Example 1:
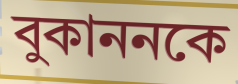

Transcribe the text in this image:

বুকাননকে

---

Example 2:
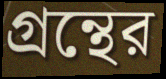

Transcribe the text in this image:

গ্রন্থের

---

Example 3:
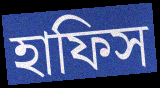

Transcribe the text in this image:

হাফিস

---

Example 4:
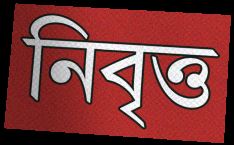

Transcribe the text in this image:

নিবৃত্ত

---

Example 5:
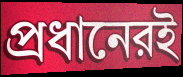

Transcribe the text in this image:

প্রধানেরই